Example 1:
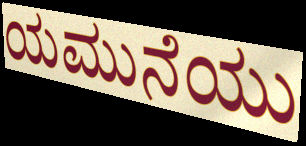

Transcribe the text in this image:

ಯಮುನೆಯು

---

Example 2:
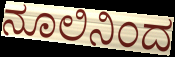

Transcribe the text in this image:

ನೂಲಿನಿಂದ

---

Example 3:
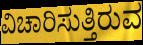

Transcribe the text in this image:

ವಿಚಾರಿಸುತ್ತಿರುವ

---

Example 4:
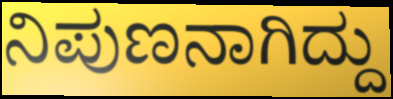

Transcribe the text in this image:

ನಿಪುಣನಾಗಿದ್ದು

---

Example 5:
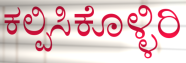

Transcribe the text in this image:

ಕಲ್ಪಿಸಿಕೊಳ್ಳಿರಿ